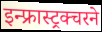
इन्फ्रास्ट्रक्चरने